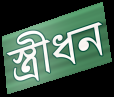
স্ত্রীধন